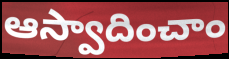
ఆస్వాదించాం